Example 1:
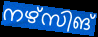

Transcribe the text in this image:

നഴ്സിങ്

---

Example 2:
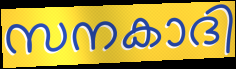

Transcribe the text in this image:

സനകാദി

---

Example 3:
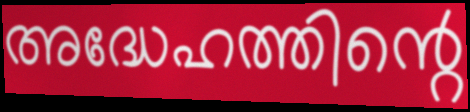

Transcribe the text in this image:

അദ്ധേഹത്തിന്റെ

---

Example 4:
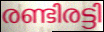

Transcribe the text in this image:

രണ്ടിരട്ടി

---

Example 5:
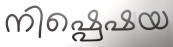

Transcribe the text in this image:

നിഷ്പെഷയ